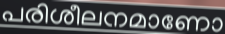
പരിശീലനമാണോ